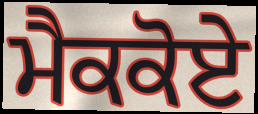
ਮੈਕਕੋਏ